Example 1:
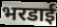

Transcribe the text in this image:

भरडाई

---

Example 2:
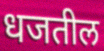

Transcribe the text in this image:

धजतील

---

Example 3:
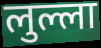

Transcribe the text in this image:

लुल्ला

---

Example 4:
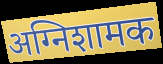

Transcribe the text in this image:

अग्निशामक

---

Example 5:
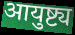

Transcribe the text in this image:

आयुष्ट्य